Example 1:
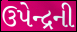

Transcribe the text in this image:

ઉપેન્દ્રની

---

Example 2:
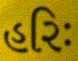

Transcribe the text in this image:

હરિઃ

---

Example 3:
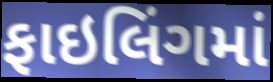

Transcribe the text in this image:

ફાઇલિંગમાં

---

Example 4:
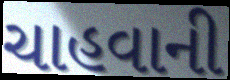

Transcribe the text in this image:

ચાહવાની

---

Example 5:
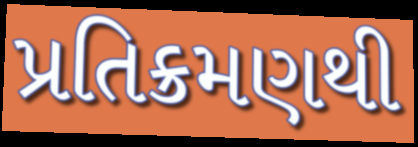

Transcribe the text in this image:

પ્રતિક્રમણથી